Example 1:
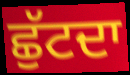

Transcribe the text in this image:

ਛੁੱਟਦਾ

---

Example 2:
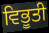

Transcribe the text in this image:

ਵਿਭੂਤੀ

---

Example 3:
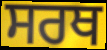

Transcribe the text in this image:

ਸਰਥ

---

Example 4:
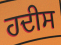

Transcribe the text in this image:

ਹਦੀਸ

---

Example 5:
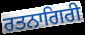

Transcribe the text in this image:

ਰਤਨਾਗਿਰੀ